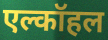
एल्कॉहल